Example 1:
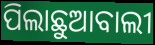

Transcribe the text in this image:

ପିଲାଛୁଆବାଲୀ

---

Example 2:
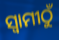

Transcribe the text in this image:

ସ୍ୱାମୀଠୁଁ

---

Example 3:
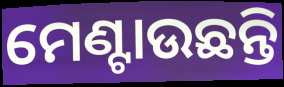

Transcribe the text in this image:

ମେଣ୍ଟାଉଛନ୍ତି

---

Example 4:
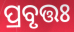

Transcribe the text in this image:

ପ୍ରବୃତ୍ତଃ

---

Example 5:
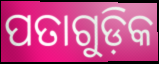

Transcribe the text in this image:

ପତାଗୁଡ଼ିକ